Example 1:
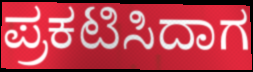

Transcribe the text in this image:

ಪ್ರಕಟಿಸಿದಾಗ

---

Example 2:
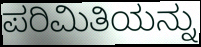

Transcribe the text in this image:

ಪರಿಮಿತಿಯನ್ನು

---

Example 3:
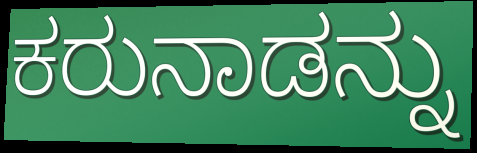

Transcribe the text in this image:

ಕರುನಾಡನ್ನು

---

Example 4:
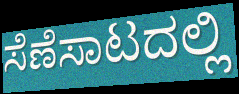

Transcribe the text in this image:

ಸೆಣೆಸಾಟದಲ್ಲಿ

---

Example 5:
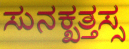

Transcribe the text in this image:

ಸುನಕ್ಖತ್ತಸ್ಸ